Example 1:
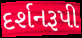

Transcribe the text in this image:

દર્શનરૂપી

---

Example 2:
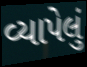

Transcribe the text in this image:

વ્યાપેલું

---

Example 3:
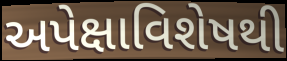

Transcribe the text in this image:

અપેક્ષાવિશેષથી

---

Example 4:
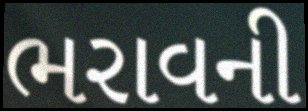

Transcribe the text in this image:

ભરાવની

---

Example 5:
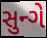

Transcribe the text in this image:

સુન્ગે